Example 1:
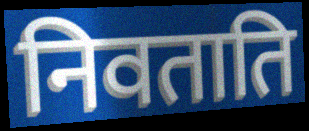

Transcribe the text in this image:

निवताति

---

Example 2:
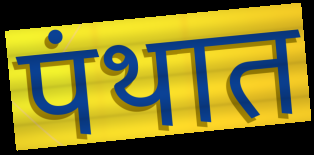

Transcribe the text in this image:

पंथात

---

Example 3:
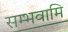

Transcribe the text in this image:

सम्भवामि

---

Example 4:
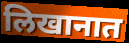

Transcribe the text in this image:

लिखानात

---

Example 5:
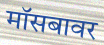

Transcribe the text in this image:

मॉसबावर